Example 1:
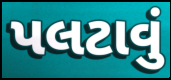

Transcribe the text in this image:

પલટાવું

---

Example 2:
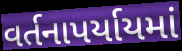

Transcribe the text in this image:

વર્તનાપર્યાયમાં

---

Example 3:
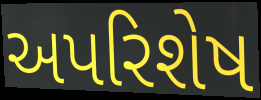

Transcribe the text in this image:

અપરિશેષ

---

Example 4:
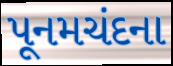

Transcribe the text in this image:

પૂનમચંદના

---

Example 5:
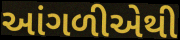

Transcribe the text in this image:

આંગળીએથી